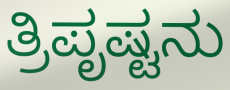
ತ್ರಿಪೃಷ್ಟನು